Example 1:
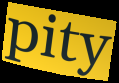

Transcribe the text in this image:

pity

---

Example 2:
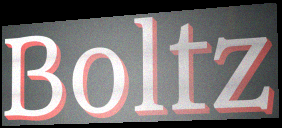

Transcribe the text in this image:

Boltz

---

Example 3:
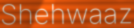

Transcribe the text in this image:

Shehwaaz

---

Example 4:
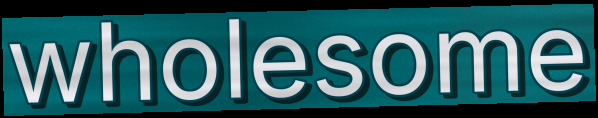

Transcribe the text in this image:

wholesome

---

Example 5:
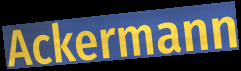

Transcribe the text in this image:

Ackermann